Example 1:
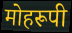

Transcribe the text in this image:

मोहरूपी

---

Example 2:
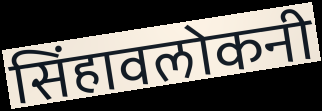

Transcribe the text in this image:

सिंहावलोकनी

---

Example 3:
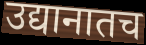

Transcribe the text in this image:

उद्यानातच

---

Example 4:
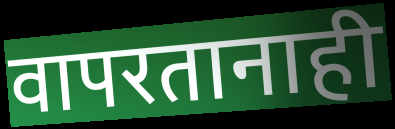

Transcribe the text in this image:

वापरतानाही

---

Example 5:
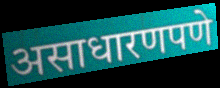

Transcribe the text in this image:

असाधारणपणे